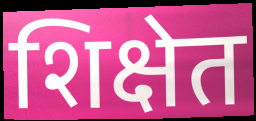
शिक्षेत